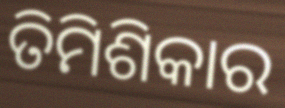
ତିମିଶିକାର